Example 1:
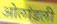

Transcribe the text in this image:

ओलांडली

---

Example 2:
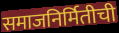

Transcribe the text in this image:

समाजनिर्मितीची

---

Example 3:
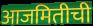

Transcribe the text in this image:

आजमितीची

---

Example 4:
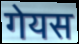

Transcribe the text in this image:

गेयस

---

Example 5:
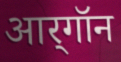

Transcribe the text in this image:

आर्‌गॉन